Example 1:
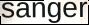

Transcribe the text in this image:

sanger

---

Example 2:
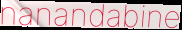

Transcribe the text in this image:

nanandabine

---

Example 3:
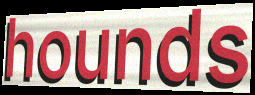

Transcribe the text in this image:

hounds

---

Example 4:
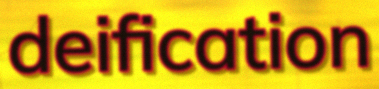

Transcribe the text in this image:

deification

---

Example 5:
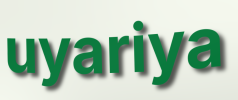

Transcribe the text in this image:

uyariya